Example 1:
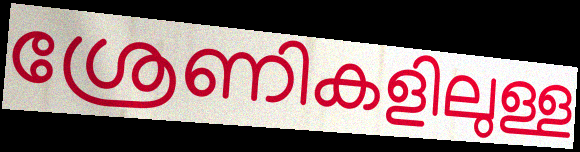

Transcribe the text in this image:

ശ്രേണികളിലുള്ള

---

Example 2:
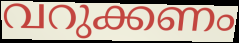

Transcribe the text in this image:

വറുക്കണം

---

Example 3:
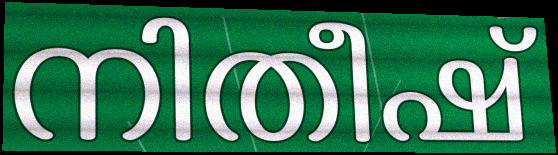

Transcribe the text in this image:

നിതീഷ്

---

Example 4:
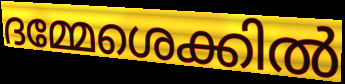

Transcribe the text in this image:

ദമ്മേശെക്കിൽ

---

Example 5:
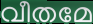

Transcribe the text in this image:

വീതമേ